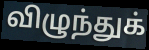
விழுந்துக்